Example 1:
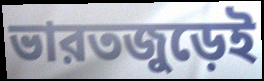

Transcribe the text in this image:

ভারতজুড়েই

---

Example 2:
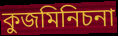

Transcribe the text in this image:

কুজমিনিচনা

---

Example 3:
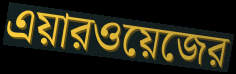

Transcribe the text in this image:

এয়ারওয়েজের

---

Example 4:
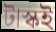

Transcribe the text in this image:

টাস্কই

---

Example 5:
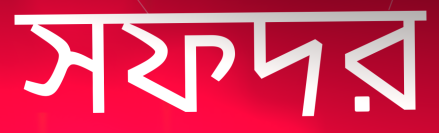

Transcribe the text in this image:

সফদর